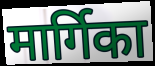
मार्गिका